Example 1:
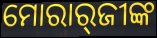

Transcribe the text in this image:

ମୋରାର୍‌ଜୀଙ୍କ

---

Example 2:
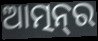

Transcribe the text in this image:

ଆତ୍ମନ୍‌ର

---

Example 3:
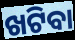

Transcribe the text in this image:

ଖଟିବା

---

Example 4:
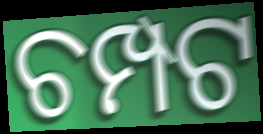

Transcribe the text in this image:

ଚମ୍ପଟ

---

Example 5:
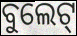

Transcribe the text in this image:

ବୁଲେଟ୍